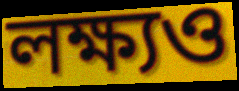
লক্ষ্যও